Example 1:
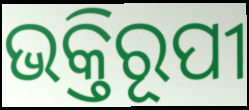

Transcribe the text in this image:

ଭକ୍ତିରୂପୀ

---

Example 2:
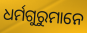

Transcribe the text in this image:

ଧର୍ମଗୁରୁମାନେ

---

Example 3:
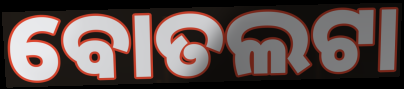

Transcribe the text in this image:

ବୋତଲଟା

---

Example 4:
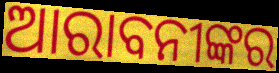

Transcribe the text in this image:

ଆରାବନୀଙ୍କର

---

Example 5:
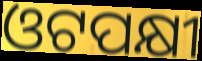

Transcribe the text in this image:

ଓଟପକ୍ଷୀ